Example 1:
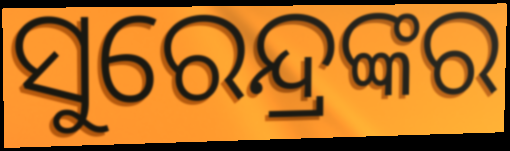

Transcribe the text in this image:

ସୁରେନ୍ଦ୍ରଙ୍କର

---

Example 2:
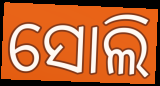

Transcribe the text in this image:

ସୋଲି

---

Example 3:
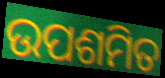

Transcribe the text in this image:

ଉପଶମିତ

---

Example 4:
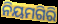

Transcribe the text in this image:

ନିୟମଗିରି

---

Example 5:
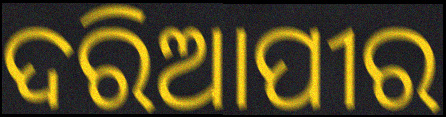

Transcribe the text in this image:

ଦରିଆପୀର